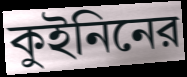
কুইনিনের